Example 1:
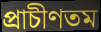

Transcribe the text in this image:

প্রাচীণতম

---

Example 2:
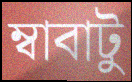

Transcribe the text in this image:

ম্বাবাটু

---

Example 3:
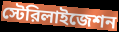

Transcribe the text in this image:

স্টেরিলাইজেশন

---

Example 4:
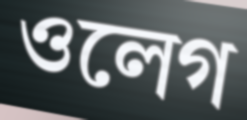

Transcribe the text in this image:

ওলেগ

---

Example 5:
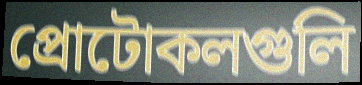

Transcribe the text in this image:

প্রোটোকলগুলি